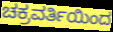
ಚಕ್ರವರ್ತಿಯಿಂದ